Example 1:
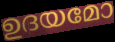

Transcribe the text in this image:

ഉദയമോ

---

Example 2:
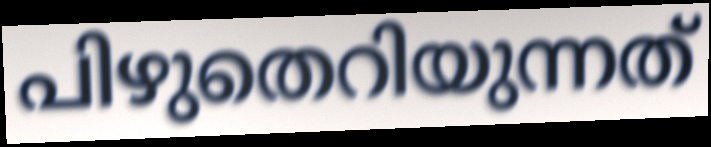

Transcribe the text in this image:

പിഴുതെറിയുന്നത്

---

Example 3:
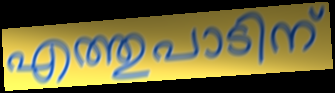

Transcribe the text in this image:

എത്തുപാടിന്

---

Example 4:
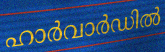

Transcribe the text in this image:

ഹാർവാർഡിൽ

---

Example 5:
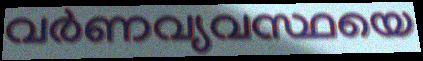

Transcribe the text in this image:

വർണവ്യവസ്ഥയെ